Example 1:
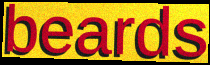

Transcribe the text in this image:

beards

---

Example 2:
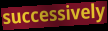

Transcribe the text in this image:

successively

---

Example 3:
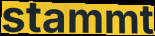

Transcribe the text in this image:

stammt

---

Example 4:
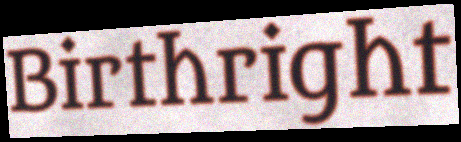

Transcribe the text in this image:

Birthright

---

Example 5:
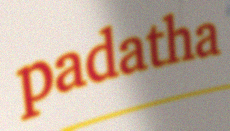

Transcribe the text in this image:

padatha